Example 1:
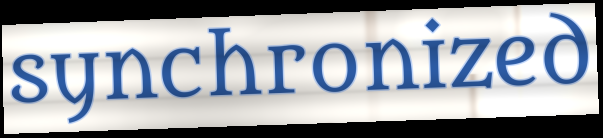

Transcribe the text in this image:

synchronized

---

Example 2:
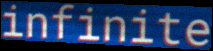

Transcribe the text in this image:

infinite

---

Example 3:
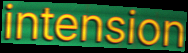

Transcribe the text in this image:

intension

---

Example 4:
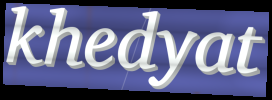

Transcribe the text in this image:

khedyat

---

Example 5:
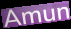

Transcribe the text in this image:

Amun